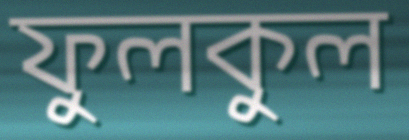
ফুলকুল